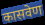
कासवेण